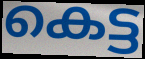
കെട്ട